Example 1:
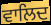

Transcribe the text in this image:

ਵਾਲਿਦ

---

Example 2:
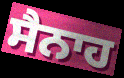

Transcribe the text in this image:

ਸੈਨਾਹ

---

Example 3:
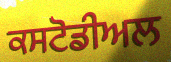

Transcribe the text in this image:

ਕਸਟੋਡੀਅਲ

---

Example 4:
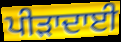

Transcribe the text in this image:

ਪੀੜਾਦਾਈ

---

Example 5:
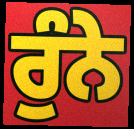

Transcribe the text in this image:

ਰੁੰਨੇ